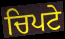
ਚਿਪਟੇ